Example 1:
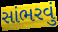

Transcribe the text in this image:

સાંભરવું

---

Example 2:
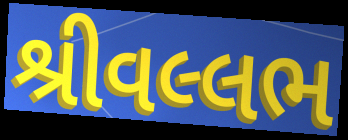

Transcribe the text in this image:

શ્રીવલ્લભ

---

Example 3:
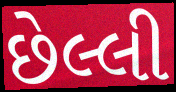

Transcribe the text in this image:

છેલ્લી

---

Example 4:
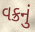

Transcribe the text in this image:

વક્રનું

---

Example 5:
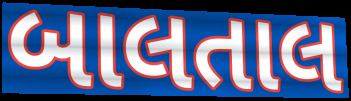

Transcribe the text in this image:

બાલતાલ